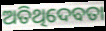
ଅତିଥିଦେବତା